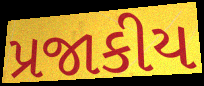
પ્રજાકીય